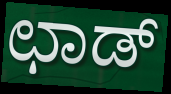
ಛಾಡ್